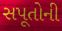
સપૂતોની